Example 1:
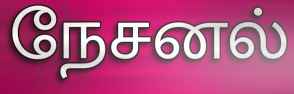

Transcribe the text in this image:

நேசனல்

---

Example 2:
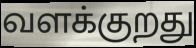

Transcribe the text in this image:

வளக்குறது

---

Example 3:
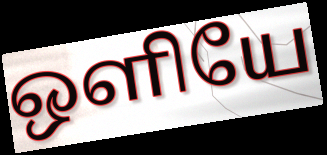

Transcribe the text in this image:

ஒளியே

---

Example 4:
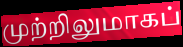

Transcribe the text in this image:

முற்றிலுமாகப்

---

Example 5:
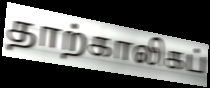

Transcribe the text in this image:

தாற்காலிகப்